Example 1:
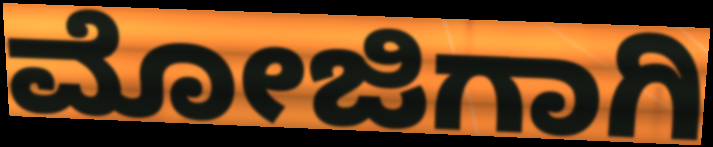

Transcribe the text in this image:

ಮೋಜಿಗಾಗಿ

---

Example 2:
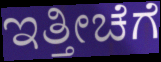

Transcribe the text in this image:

ಇತ್ತೀಚೆಗೆ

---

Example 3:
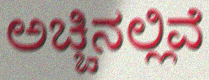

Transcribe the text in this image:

ಅಚ್ಚಿನಲ್ಲಿವೆ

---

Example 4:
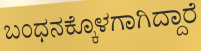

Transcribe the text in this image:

ಬಂಧನಕ್ಕೊಳಗಾಗಿದ್ದಾರೆ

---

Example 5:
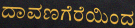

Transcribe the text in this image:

ದಾವಣಗೆರೆಯಿಂದ